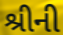
શ્રીની